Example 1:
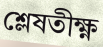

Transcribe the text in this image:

শ্লেষতীক্ষ্ণ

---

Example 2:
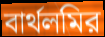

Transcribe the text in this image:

বার্থলমির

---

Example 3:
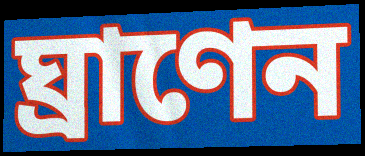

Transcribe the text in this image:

ঘ্রাণেন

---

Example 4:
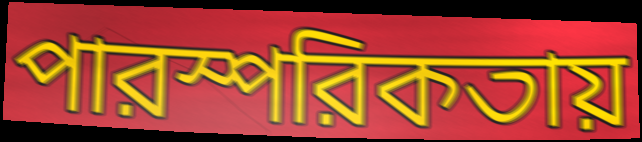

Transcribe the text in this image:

পারস্পরিকতায়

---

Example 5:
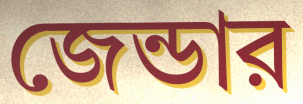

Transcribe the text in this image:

জেন্ডার